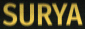
SURYA